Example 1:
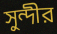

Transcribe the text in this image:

সুন্দীর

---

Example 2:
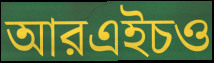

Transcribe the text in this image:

আরএইচও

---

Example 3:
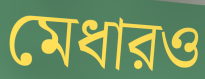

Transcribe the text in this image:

মেধারও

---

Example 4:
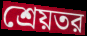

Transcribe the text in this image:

শ্রেয়তর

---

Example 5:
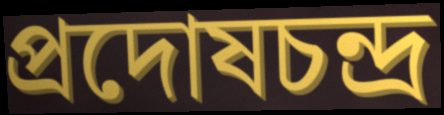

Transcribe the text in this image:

প্রদোষচন্দ্র